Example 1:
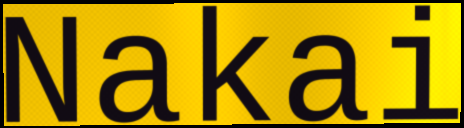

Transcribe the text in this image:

Nakai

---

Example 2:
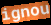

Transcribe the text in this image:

ignou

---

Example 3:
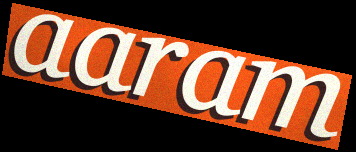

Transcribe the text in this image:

aaram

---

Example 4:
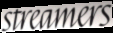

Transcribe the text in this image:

streamers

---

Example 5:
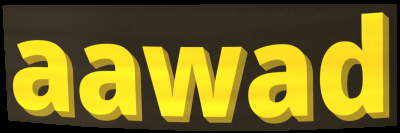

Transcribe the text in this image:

aawad